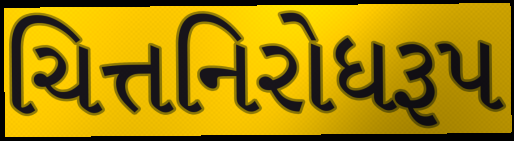
ચિત્તનિરોધરૂપ